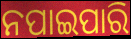
ନପାଇପାରି